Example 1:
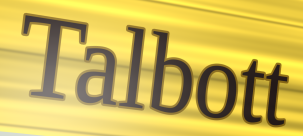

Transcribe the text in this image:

Talbott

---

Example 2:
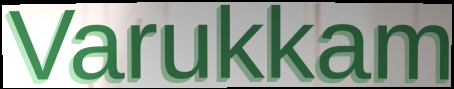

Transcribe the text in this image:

Varukkam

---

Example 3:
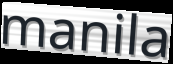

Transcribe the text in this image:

manila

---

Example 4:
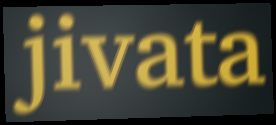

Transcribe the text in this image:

jivata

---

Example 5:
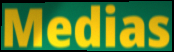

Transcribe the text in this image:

Medias